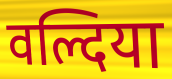
वल्दिया